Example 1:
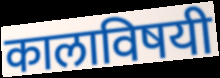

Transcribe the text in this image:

कालाविषयी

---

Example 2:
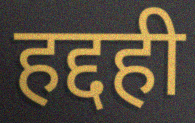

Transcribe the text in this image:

हद्दही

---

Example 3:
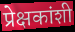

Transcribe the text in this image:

प्रेक्षकांशी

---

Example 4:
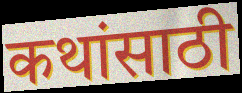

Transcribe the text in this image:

कथांसाठी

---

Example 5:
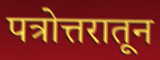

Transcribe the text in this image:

पत्रोत्तरातून